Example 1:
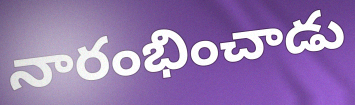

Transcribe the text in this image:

నారంభించాడు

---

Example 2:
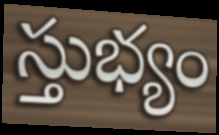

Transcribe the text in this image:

స్తుభ్యం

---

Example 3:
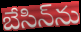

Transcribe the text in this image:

బేసిన్‌ను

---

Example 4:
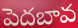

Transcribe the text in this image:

పెదబావ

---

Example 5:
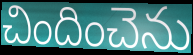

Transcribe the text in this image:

చిందించెను